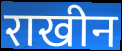
राखीन